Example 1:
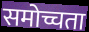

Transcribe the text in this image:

समोच्चता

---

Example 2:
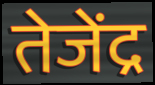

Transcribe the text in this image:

तेजेंद्र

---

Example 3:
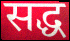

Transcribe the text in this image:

सद्ध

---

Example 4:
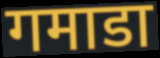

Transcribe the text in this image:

गमाडा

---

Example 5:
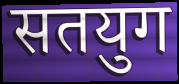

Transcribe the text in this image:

सतयुग